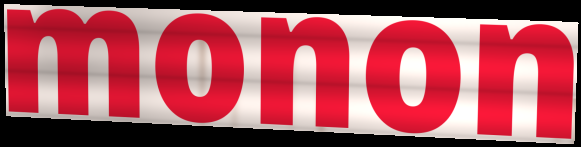
monon